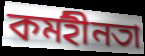
কৰ্মহীনতা